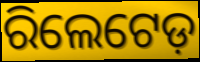
ରିଲେଟେଡ଼